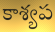
కాశ్యప